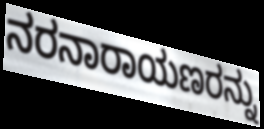
ನರನಾರಾಯಣರನ್ನು